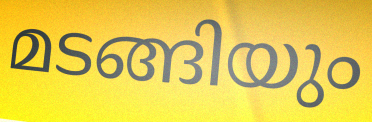
മടങ്ങിയും